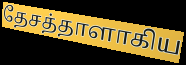
தேசத்தாளாகிய